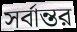
সর্বান্তর